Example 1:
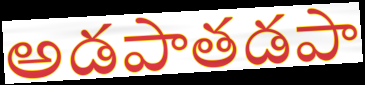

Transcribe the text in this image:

అడపాతడపా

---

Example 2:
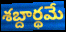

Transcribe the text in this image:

శబ్దార్థమే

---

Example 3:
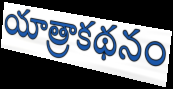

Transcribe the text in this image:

యాత్రాకథనం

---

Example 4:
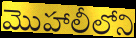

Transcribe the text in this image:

మొహాలీలోని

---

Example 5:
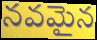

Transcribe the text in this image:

నవమైన